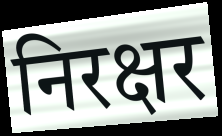
निरक्षर